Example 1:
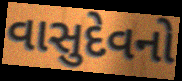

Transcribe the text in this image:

વાસુદેવનો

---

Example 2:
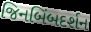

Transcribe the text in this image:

જિનબિંબદર્શન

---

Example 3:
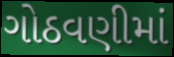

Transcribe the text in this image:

ગોઠવણીમાં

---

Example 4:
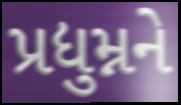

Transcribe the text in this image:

પ્રદ્યુમ્નને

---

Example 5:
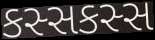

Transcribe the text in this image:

કસ્સકસ્સ